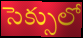
సెక్సులో